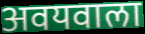
अवयवाला